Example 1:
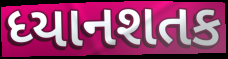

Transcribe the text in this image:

ધ્યાનશતક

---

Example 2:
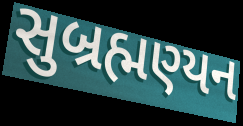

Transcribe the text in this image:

સુબ્રહ્મણ્યન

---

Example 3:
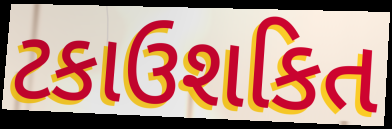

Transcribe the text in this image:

ટકાઉશકિત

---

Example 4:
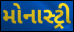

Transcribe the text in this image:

મોનાસ્ટ્રી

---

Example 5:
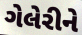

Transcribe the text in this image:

ગેલેરીને